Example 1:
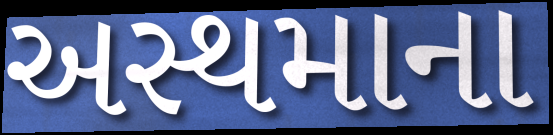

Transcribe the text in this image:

અસ્થમાના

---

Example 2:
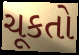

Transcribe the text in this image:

ચૂકતો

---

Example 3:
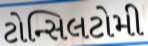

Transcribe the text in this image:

ટોન્સિલટોમી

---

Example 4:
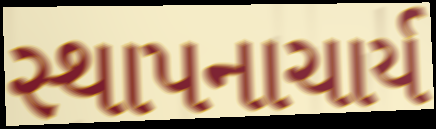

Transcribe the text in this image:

સ્થાપનાચાર્ય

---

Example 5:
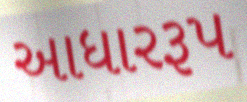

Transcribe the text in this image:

આધારરૂપ